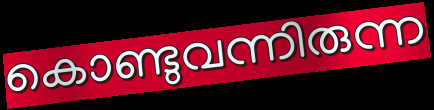
കൊണ്ടുവന്നിരുന്ന